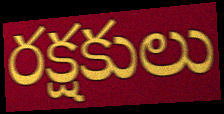
రక్షకులు